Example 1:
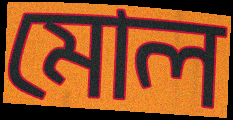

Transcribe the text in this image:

মোল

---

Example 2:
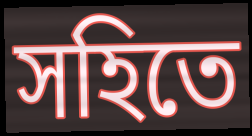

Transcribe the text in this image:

সহিতে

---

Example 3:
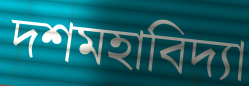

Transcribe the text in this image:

দশমহাবিদ্যা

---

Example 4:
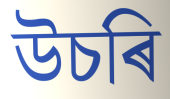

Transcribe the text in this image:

উচৰি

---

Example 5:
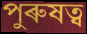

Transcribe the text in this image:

পুৰুষত্ব